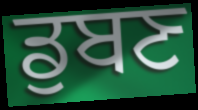
ਡੁਬਣ